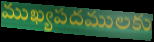
ముఖ్యపదములకు